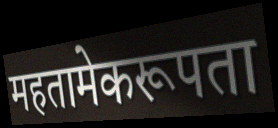
महतामेकरूपता